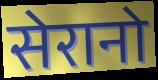
सेरानो